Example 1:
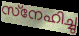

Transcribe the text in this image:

സ്‌നേഹിച്ചു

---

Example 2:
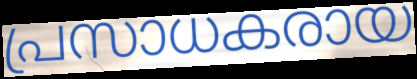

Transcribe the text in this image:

പ്രസാധകരായ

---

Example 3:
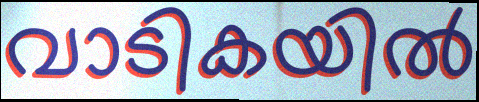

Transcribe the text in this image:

വാടികയിൽ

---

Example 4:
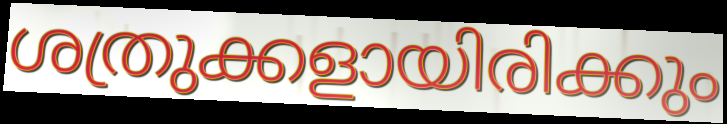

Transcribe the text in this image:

ശത്രുക്കളായിരിക്കും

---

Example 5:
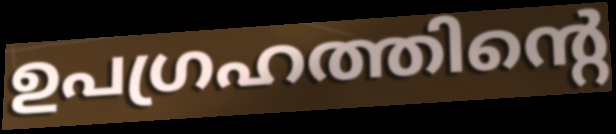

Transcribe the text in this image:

ഉപഗ്രഹത്തിന്റെ